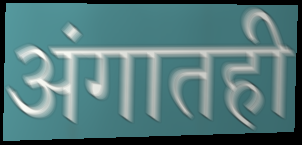
अंगातही